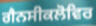
ਗੈਨਸੀਕਲੋਵਿਰ